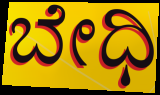
ಬೇಧಿ